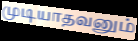
முடியாதவனும்